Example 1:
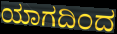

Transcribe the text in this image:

ಯಾಗದಿಂದ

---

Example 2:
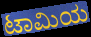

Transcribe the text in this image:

ಟಾಮಿಯ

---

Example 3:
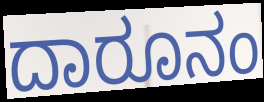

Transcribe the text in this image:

ದಾರೂನಂ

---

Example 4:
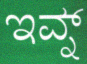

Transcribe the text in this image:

ಇವ್ನ್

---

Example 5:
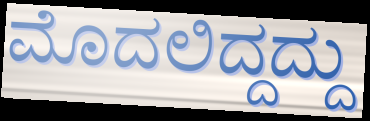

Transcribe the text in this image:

ಮೊದಲಿದ್ದದ್ದು